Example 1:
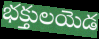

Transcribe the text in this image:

భక్తులయెడ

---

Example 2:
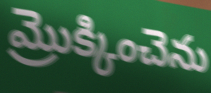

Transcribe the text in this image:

మ్రొక్కించెను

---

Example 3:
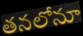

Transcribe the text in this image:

తనలోనూ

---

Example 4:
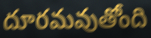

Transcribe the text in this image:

దూరమవుతోంది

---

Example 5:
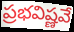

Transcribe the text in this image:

ప్రభవిష్ణవే